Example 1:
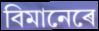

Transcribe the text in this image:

বিমানেৰে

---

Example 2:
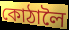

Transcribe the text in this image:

কোঠালৈ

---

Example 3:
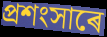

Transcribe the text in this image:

প্ৰশংসাৰে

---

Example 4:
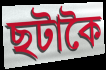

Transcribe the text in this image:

ছটাকৈ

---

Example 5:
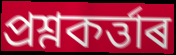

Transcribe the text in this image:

প্ৰশ্নকৰ্ত্তাৰ